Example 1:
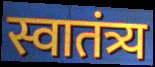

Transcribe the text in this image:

स्वातंत्र्य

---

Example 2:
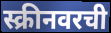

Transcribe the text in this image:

स्क्रीनवरची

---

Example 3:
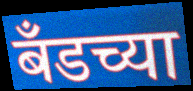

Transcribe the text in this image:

बँडच्या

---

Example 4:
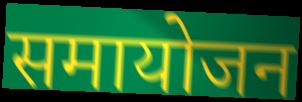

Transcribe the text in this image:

समायोजन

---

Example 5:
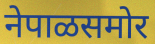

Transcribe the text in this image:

नेपाळसमोर